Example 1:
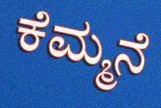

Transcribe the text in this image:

ಕೆಮ್ಮನೆ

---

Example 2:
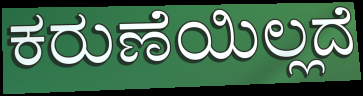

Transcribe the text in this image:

ಕರುಣೆಯಿಲ್ಲದೆ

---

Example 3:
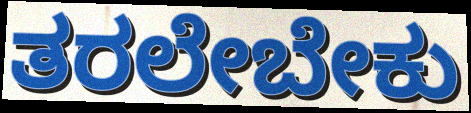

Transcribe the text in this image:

ತರಲೇಬೇಕು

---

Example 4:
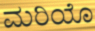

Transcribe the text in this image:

ಮರಿಯೊ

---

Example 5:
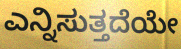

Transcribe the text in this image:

ಎನ್ನಿಸುತ್ತದೆಯೇ